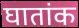
घातांक